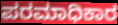
ಪರಮಾಧಿಕಾರ